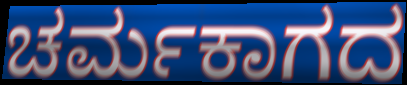
ಚರ್ಮಕಾಗದ